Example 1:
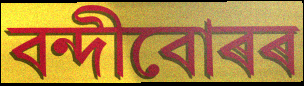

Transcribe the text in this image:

বন্দীবোৰৰ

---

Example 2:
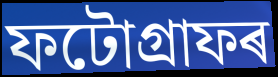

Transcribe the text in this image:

ফটোগ্ৰাফৰ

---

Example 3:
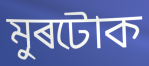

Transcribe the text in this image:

মুৰটোক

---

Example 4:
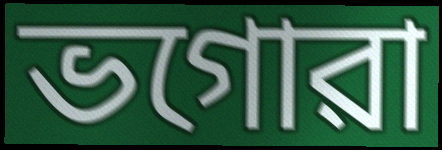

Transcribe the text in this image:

ভগোৱা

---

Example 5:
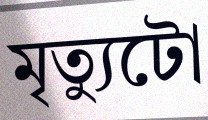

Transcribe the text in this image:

মৃত্যুটো